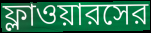
ফ্লাওয়ারসের